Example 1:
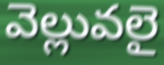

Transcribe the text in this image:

వెల్లువలై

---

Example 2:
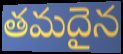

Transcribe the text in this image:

తమదైన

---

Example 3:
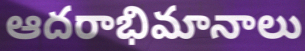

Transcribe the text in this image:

ఆదరాభిమానాలు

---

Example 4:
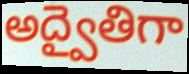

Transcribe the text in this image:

అద్వైతిగా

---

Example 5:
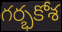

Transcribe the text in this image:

గర్భకోశ